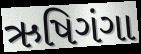
ઋષિગંગા